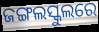
ଜଙ୍ଗଲସ୍କୁଲରେ